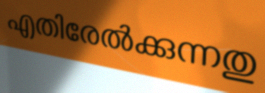
എതിരേൽക്കുന്നതു